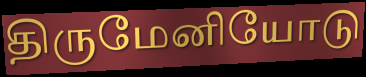
திருமேனியோடு